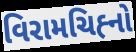
વિરામચિહ્‍નો